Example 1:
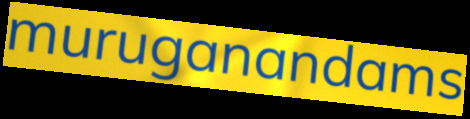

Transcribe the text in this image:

muruganandams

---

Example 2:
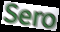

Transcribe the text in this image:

Sero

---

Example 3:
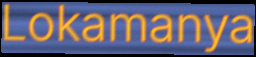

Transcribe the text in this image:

Lokamanya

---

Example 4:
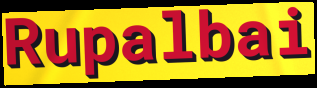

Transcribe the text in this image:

Rupalbai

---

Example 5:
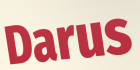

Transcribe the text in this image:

Darus